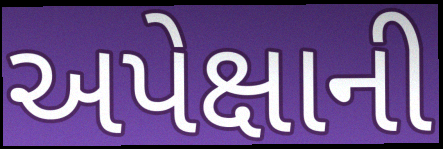
અપેક્ષાની